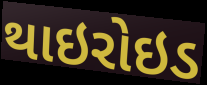
થાઇરોઇડ